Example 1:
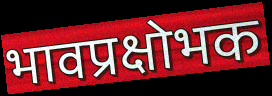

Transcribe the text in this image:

भावप्रक्षोभक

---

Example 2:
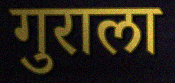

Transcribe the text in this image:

गुराला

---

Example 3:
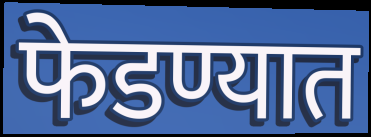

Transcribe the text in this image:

फेडण्यात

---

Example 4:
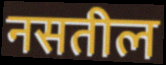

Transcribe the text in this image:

नसतील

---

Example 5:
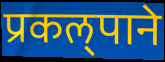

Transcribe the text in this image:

प्रकल्पाने